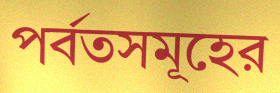
পর্বতসমূহের